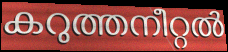
കറുത്തനീറ്റൽ